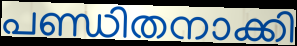
പണ്ഡിതനാക്കി